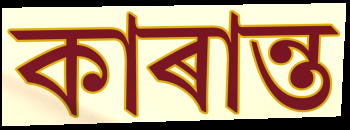
কাৰান্ত